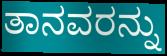
ತಾನವರನ್ನು